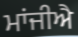
ਮਾਂਜੀਐ